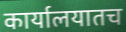
कार्यालयातच